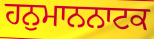
ਹਨੁਮਾਨਨਾਟਕ